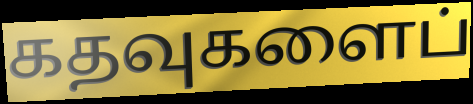
கதவுகளைப்